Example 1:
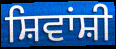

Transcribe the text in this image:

ਸ਼ਿਵਾਂਸ਼ੀ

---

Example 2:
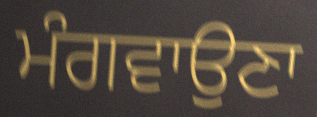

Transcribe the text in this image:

ਮੰਗਵਾਉਣਾ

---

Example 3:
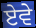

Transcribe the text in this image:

ਏਵੇ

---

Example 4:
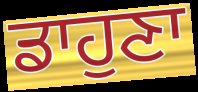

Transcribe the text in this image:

ਡਾਹੁਣਾ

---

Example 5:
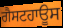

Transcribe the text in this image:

ਗੈਸਟਹਾਊਸ